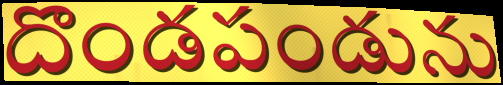
దొండపండును